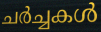
ചർച്ചകൾ